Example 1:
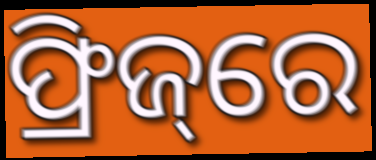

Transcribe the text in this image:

ଫ୍ରିଜ୍‌ରେ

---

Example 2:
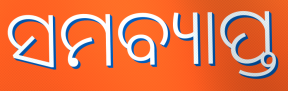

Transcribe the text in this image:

ସମବ୍ୟାପ୍ତ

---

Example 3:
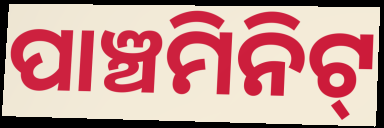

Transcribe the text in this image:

ପାଞ୍ଚମିନିଟ୍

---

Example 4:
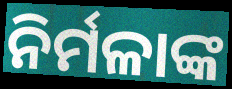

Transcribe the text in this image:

ନିର୍ମଳାଙ୍କ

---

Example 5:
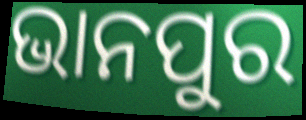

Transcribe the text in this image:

ଭାନପୁର